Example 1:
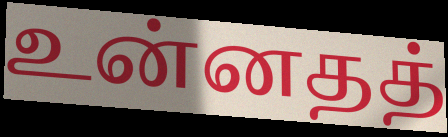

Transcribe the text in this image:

உன்னதத்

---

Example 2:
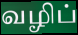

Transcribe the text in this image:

வழிப்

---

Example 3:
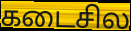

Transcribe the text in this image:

கடைசில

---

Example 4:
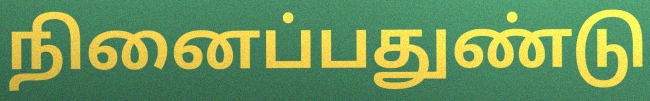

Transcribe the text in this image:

நினைப்பதுண்டு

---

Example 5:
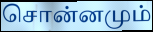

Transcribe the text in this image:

சொன்னமும்